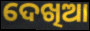
ଦେଖିଆ